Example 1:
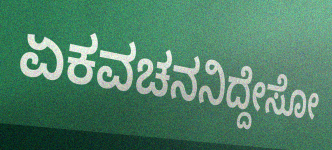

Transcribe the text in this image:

ಏಕವಚನನಿದ್ದೇಸೋ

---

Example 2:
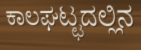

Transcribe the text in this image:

ಕಾಲಘಟ್ಟದಲ್ಲಿನ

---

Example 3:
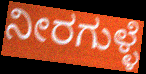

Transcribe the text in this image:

ನೀರಗುಳ್ಳೆ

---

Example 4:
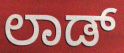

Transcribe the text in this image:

ಲಾಡ್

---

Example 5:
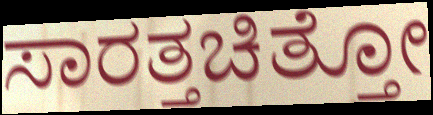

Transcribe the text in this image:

ಸಾರತ್ತಚಿತ್ತೋ